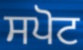
ਸਪੋਟ